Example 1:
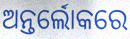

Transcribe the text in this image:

ଅନ୍ତର୍ଲୋକରେ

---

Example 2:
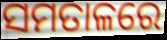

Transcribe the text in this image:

ସମତାଳରେ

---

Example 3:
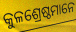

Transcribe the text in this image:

କୁଳଶ୍ରେଷ୍ଠମାନେ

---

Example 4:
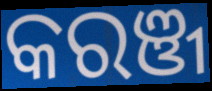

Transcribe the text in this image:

କରଞ୍ଜ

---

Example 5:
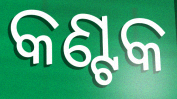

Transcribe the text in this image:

କଣ୍ଟକ